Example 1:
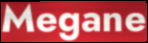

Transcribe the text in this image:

Megane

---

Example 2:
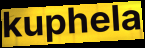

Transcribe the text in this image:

kuphela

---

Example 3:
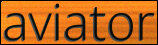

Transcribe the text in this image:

aviator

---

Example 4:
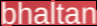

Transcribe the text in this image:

bhaltan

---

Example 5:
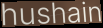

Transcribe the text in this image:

hushain